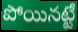
పోయినట్టే